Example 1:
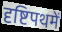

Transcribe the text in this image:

दृष्टिपथमें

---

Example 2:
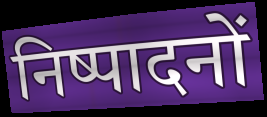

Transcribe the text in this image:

निष्पादनों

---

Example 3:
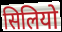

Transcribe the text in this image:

सिलियो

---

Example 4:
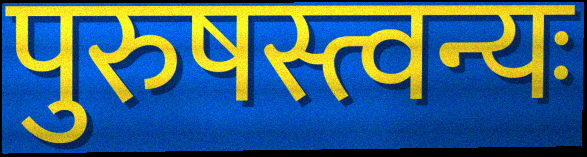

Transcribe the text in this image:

पुरुषस्त्वन्यः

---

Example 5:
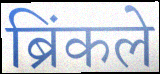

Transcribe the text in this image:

ब्रिंकले